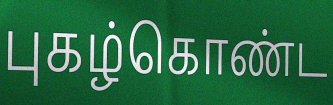
புகழ்கொண்ட